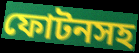
ফোটনসহ